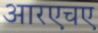
आरएचए